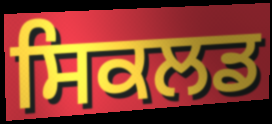
ਸਿਕਲਡ